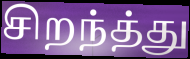
சிறந்த்து